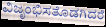
ವಿಜೃಂಭಿಸತೊಡಗಿದರೆ